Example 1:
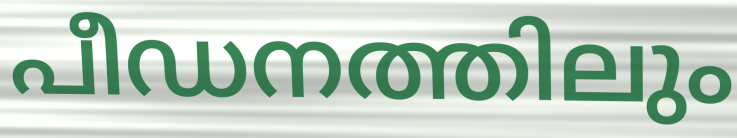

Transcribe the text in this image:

പീഡനത്തിലും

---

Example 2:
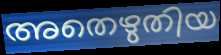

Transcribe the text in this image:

അതെഴുതിയ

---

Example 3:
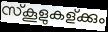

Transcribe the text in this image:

സ്കൂളുകള്ക്കും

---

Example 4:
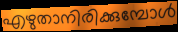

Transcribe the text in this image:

എഴുതാനിരിക്കുമ്പോൾ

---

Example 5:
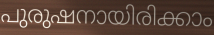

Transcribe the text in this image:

പുരുഷനായിരിക്കാം